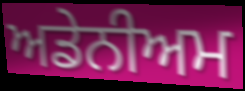
ਅਡੇਨੀਅਮ